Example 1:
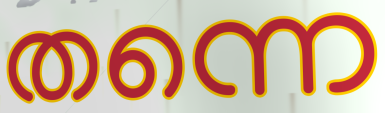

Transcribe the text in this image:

തന്നെ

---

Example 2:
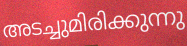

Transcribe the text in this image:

അടച്ചുമിരിക്കുന്നു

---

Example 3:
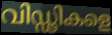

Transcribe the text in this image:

വിഡ്ഢികളെ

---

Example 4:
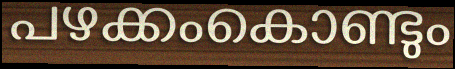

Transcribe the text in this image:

പഴക്കംകൊണ്ടും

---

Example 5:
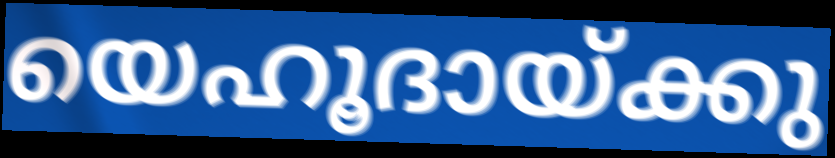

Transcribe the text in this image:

യെഹൂദായ്ക്കു